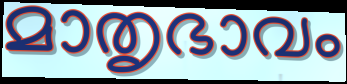
മാതൃഭാവം